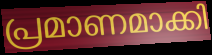
പ്രമാണമാക്കി